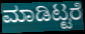
ಮಾಡಿಟ್ಟರೆ